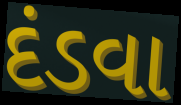
દંડવા